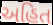
અહિત